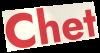
Chet